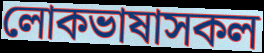
লোকভাষাসকল